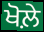
ਖੋਲ਼ੇ